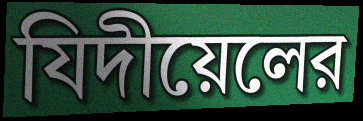
যিদীয়েলের